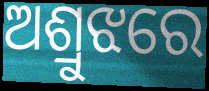
ଅଶ୍ରୁଝରେ